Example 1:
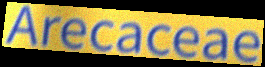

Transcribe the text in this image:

Arecaceae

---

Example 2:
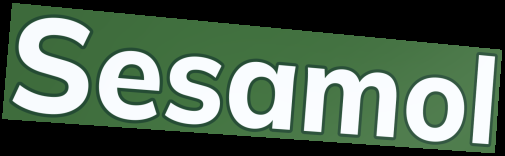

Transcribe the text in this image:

Sesamol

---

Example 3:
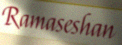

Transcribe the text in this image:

Ramaseshan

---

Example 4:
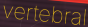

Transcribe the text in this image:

vertebral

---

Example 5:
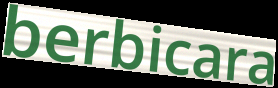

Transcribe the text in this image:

berbicara